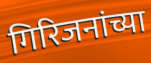
गिरिजनांच्या